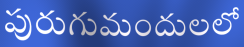
పురుగుమందులలో